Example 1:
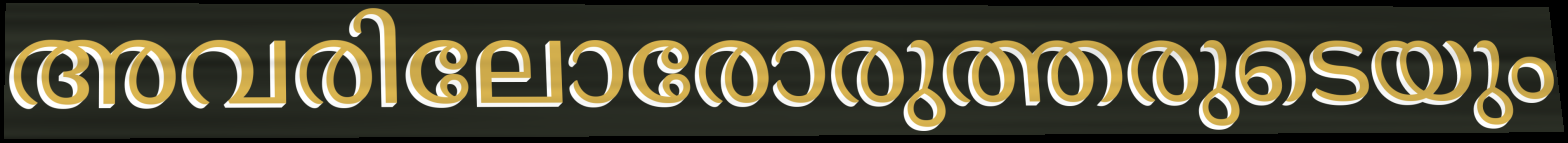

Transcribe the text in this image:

അവരിലോരോരുത്തരുടെയും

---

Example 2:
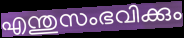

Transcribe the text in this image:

എന്തുസംഭവിക്കും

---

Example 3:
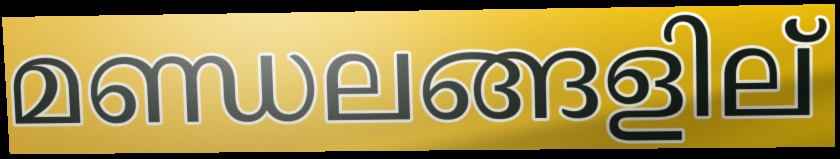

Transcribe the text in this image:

മണ്ഡലങ്ങളില്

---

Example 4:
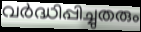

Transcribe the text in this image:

വർദ്ധിപ്പിച്ചുതരും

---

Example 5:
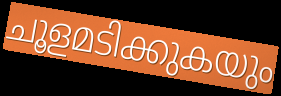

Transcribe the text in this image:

ചൂളമടിക്കുകയും